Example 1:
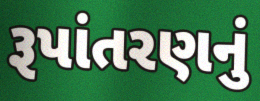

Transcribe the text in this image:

રૂપાંતરણનું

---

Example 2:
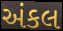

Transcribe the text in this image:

અંકલ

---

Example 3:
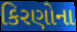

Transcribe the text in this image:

કિરણોના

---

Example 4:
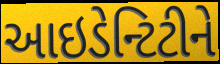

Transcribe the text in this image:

આઇડેન્ટિટીને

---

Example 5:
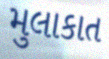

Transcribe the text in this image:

મુલાકાત